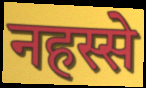
नहस्से